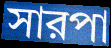
সারপা